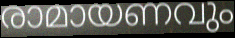
രാമായണവും